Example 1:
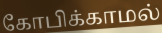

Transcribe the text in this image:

கோபிக்காமல்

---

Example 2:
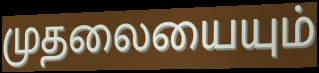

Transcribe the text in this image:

முதலையையும்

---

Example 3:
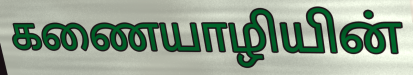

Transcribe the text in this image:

கணையாழியின்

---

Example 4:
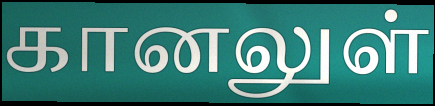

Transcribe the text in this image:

கானலுள்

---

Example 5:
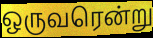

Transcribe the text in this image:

ஒருவரென்று